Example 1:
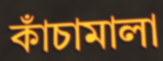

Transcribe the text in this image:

কাঁচামালা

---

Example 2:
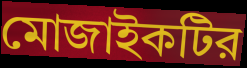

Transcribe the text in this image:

মোজাইকটির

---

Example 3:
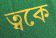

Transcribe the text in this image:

ত্বকে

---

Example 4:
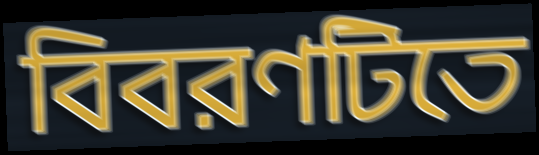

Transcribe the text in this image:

বিবরণটিতে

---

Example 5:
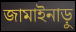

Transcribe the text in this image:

জামাইনাড়ু